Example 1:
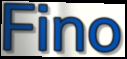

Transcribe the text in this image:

Fino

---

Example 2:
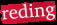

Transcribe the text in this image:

reding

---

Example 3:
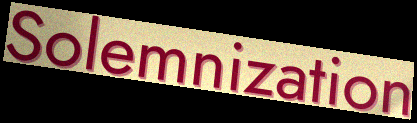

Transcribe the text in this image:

Solemnization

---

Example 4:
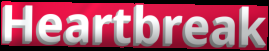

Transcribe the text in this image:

Heartbreak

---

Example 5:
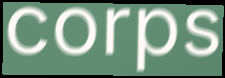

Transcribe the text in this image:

corps